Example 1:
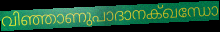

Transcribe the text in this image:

വിഞ്ഞാണുപാദാനക്ഖന്ധോ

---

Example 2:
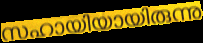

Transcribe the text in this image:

സഹായിയായിരുന്നു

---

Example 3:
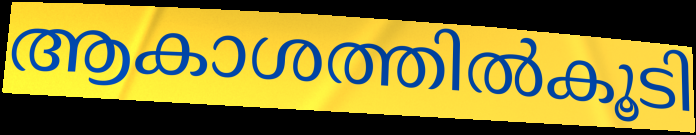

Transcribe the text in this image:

ആകാശത്തിൽകൂടി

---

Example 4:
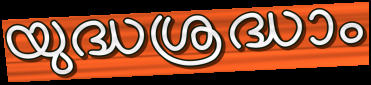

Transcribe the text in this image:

യുദ്ധശ്രദ്ധാം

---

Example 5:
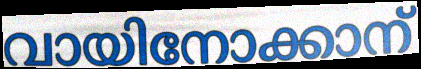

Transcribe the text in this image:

വായിനോക്കാന്